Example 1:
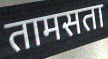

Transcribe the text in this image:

तामसता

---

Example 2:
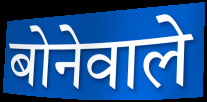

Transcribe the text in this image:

बोनेवाले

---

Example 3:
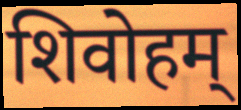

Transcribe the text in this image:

शिवोहम्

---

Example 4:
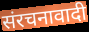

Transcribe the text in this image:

संरचनावादी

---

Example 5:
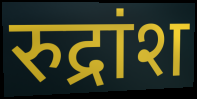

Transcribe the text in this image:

रुद्रांश